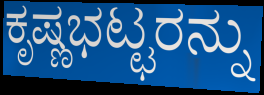
ಕೃಷ್ಣಭಟ್ಟರನ್ನು